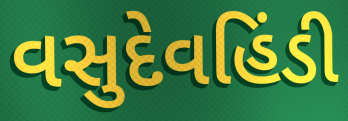
વસુદેવહિંડી